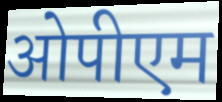
ओपीएम